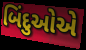
બિંદુઓએ